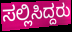
ಸಲ್ಲಿಸಿದ್ದರು